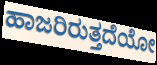
ಹಾಜರಿರುತ್ತದೆಯೋ